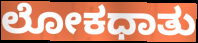
ಲೋಕಧಾತು